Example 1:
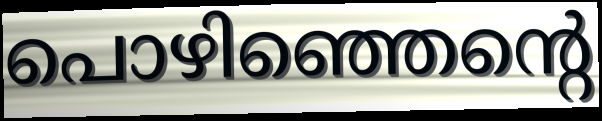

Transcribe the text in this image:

പൊഴിഞ്ഞെന്റെ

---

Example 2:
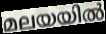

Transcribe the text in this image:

മലയയിൽ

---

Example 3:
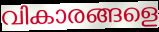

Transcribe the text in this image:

വികാരങ്ങളെ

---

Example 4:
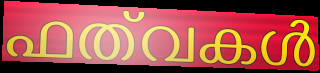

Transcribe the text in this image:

ഫത്‌വകൾ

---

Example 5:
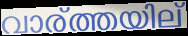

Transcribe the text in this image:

വാര്ത്തയില്